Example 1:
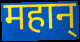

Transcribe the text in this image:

महान्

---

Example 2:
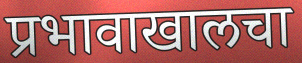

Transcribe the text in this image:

प्रभावाखालचा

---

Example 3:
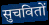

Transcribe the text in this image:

सुचवितों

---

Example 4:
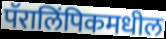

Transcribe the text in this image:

पॅरालिंपिकमधील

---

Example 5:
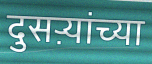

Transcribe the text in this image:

दुसऱ्‍यांच्या